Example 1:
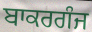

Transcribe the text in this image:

ਬਾਕਰਗੰਜ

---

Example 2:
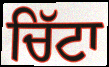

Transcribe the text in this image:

ਚਿੱਟਾ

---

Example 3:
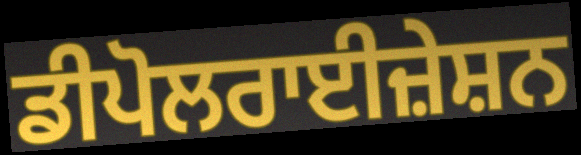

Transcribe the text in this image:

ਡੀਪੋਲਰਾਈਜ਼ੇਸ਼ਨ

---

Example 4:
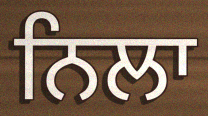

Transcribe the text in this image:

ਨਿਲਾ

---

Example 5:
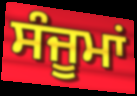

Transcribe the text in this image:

ਸੰਜੂਮਾਂ